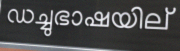
ഡച്ചുഭാഷയില്